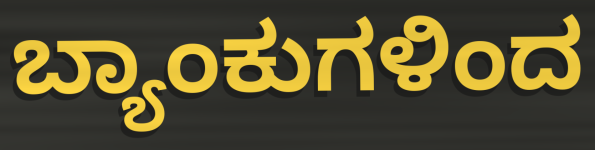
ಬ್ಯಾಂಕುಗಳಿಂದ